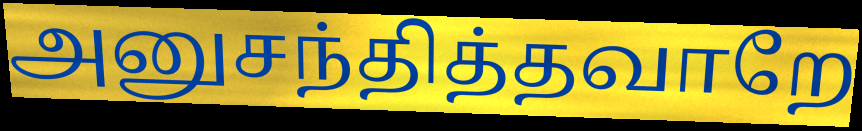
அனுசந்தித்தவாறே